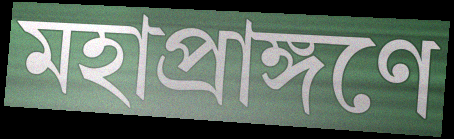
মহাপ্রাঙ্গণে